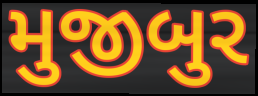
મુજીબુર